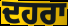
ਦਹਰਾ